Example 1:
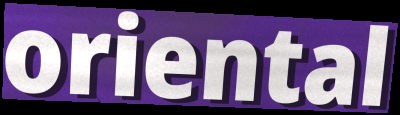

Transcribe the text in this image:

oriental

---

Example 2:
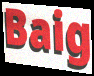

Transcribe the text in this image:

Baig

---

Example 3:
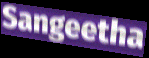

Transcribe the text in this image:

Sangeetha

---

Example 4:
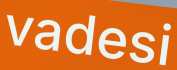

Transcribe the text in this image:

vadesi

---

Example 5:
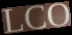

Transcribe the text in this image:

LCO